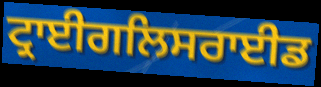
ਟ੍ਰਾਈਗਲਿਸਰਾਈਡ